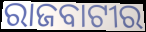
ରାଜବାଟୀର